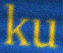
ku